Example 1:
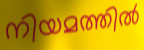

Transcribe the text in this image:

നിയമത്തിൽ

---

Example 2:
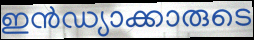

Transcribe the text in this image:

ഇൻഡ്യാക്കാരുടെ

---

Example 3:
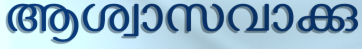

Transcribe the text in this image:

ആശ്വാസവാക്കു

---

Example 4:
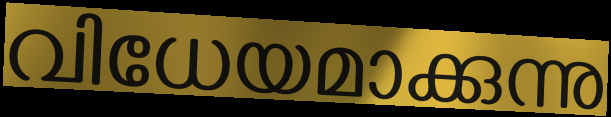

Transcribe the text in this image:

വിധേയമാക്കുന്നു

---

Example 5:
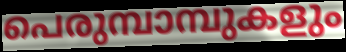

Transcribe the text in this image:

പെരുമ്പാമ്പുകളും